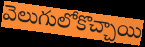
వెలుగులోకొచ్చాయి